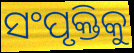
ସଂପୃକ୍ତିକୁ